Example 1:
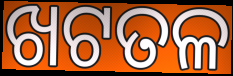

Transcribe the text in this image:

ଖଟତଳ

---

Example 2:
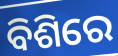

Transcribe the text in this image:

ବିଶିରେ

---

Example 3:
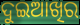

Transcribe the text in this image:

ଦୁଇଆଖିର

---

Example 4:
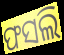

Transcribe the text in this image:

ଫସଲି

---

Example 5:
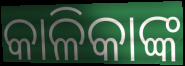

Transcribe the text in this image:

କାଳିକାଙ୍କ